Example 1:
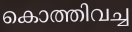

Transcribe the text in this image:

കൊത്തിവച്ച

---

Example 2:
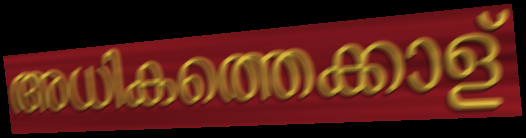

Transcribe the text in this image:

അധികത്തെക്കാള്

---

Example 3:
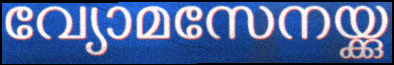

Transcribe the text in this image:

വ്യോമസേനയ്ക്കു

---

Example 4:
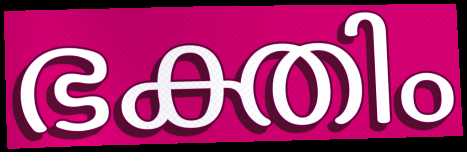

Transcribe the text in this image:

ഭക്തിം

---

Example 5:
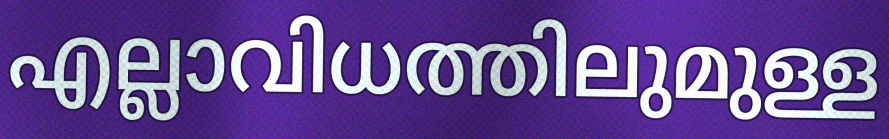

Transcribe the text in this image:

എല്ലാവിധത്തിലുമുള്ള